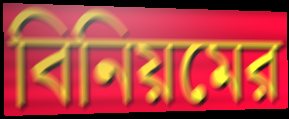
বিনিয়মের